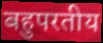
बहुपरतीय